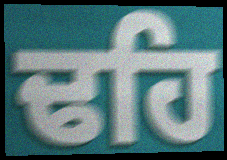
ਢਹਿ